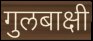
गुलबाक्षी